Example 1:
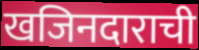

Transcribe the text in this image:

खजिनदाराची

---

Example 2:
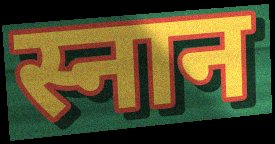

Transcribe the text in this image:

स्नान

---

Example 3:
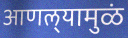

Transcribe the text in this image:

आणल्यामुळं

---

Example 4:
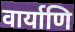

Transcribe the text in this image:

वार्याणि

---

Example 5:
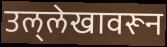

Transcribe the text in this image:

उल्लेखावरून